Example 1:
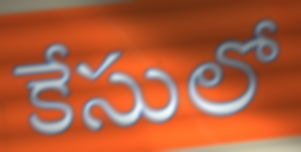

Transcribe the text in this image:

కేసులో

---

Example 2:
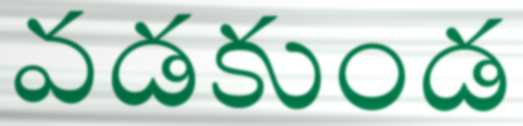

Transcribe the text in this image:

వడకుండ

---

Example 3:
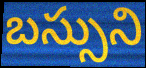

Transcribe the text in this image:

బస్సుని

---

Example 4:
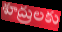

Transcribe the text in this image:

శూద్రులకు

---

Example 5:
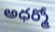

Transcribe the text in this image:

అధర్మో